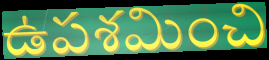
ఉపశమించి